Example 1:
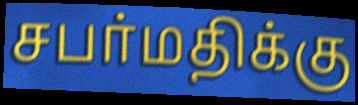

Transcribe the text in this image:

சபர்மதிக்கு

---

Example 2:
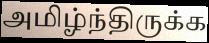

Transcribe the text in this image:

அமிழ்ந்திருக்க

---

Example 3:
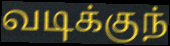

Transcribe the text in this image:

வடிக்குந்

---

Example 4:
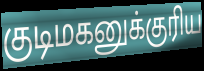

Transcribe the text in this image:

குடிமகனுக்குரிய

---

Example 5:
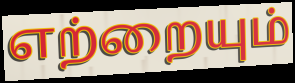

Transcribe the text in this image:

எற்றையும்